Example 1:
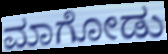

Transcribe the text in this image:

ಮಾಗೋಡು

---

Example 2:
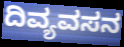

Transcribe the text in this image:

ದಿವ್ಯವಸನ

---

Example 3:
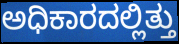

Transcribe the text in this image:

ಅಧಿಕಾರದಲ್ಲಿತ್ತು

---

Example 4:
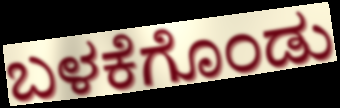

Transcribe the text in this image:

ಬಳಕೆಗೊಂಡು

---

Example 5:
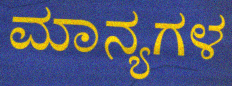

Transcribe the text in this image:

ಮಾನ್ಯಗಳ